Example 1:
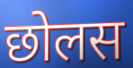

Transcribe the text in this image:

छोलस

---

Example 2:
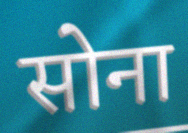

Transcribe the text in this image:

सोना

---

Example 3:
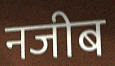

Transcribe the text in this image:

नजीब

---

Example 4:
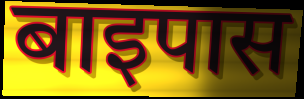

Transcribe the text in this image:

बाइपास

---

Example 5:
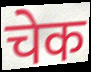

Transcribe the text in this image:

चेक